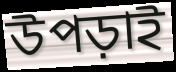
উপড়াই